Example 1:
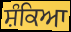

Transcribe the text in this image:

ਸ਼ੰਕਿਆ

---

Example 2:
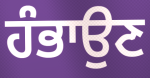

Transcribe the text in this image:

ਹੰਭਾਉਣ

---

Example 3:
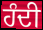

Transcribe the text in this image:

ਹੰਦੀ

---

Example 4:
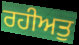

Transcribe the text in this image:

ਰਹੀਅਤੁ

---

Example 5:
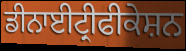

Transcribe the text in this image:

ਡੀਨਾਈਟ੍ਰੀਫੀਕੇਸ਼ਨ